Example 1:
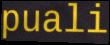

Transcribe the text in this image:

puali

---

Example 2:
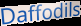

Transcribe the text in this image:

Daffodils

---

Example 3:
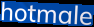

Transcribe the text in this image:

hotmale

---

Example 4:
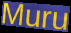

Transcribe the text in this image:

Muru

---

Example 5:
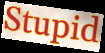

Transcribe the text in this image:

Stupid